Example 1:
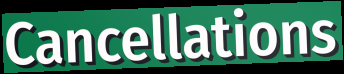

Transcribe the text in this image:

Cancellations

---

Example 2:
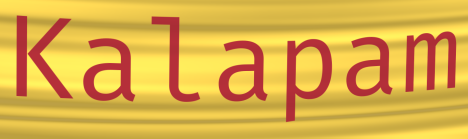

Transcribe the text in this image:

Kalapam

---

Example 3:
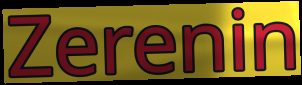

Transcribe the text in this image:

Zerenin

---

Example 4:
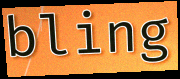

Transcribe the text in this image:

bling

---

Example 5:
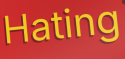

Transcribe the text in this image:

Hating